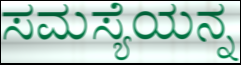
ಸಮಸ್ಯೆಯನ್ನ